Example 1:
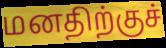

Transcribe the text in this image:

மனதிற்குச்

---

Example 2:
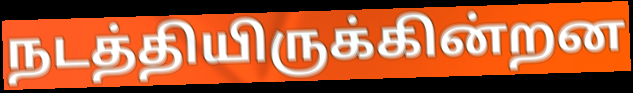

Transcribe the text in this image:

நடத்தியிருக்கின்றன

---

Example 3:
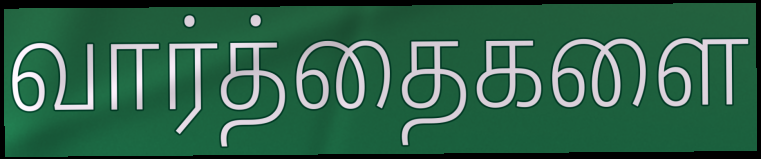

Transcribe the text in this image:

வார்த்தைகளை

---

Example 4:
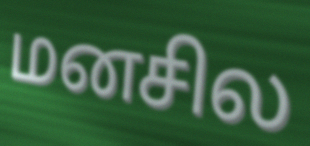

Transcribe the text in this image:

மனசில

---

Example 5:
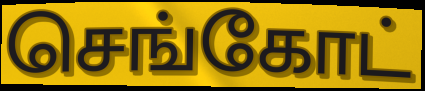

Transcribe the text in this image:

செங்கோட்